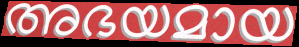
അഭയമായ